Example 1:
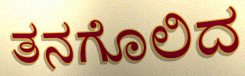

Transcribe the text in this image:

ತನಗೊಲಿದ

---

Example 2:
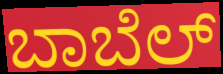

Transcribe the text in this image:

ಬಾಬೆಲ್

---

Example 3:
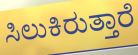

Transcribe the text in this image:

ಸಿಲುಕಿರುತ್ತಾರೆ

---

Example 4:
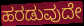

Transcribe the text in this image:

ಹರಡುವುದೇ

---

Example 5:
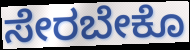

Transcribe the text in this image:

ಸೇರಬೇಕೊ